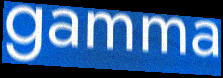
gamma